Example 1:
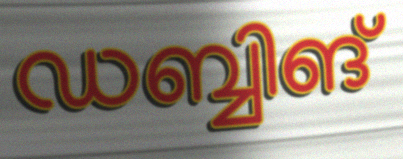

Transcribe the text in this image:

ഡബ്ബിങ്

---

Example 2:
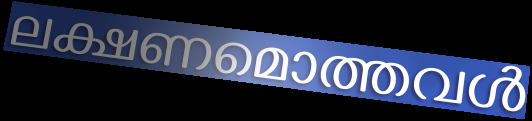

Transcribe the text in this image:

ലക്ഷണമൊത്തവൾ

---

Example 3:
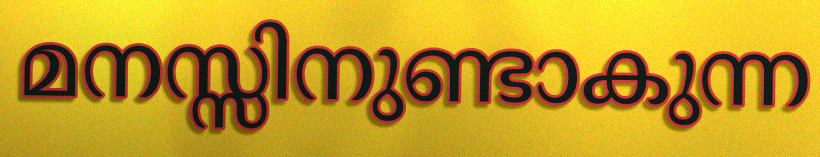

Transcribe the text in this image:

മനസ്സിനുണ്ടാകുന്ന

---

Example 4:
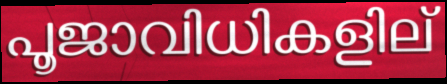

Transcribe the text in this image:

പൂജാവിധികളില്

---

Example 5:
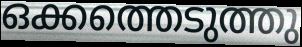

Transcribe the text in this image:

ഒക്കത്തെടുത്തു